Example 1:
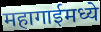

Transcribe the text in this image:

महागाईमध्ये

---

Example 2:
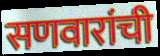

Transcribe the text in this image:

सणवारांची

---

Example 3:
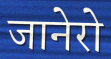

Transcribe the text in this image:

जानेरो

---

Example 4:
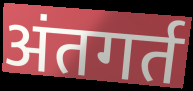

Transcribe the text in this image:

अंतगर्त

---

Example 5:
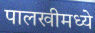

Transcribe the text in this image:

पालखीमध्ये